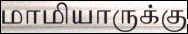
மாமியாருக்கு